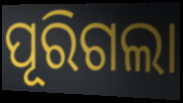
ପୂରିଗଲା